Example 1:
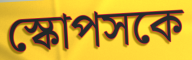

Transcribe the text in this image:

স্কোপসকে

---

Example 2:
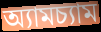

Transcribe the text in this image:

অ্যামচ্যাম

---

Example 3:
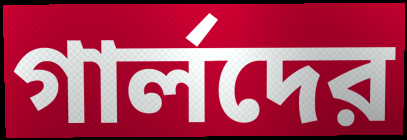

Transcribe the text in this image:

গার্লদের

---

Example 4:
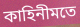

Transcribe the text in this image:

কাহিনীমতে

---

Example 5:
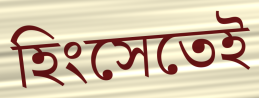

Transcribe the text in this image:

হিংসেতেই